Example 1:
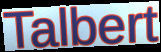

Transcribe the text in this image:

Talbert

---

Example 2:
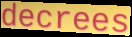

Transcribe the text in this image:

decrees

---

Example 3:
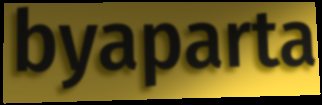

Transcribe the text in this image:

byaparta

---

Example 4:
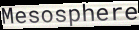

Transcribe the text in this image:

Mesosphere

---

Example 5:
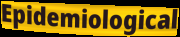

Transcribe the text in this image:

Epidemiological